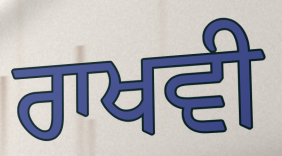
ਰਾਖਵੀ